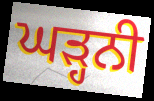
ਘੜ੍ਹਨੀ